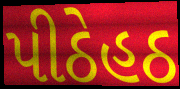
પીઠેહઠ